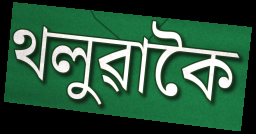
থলুৱাকৈ